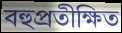
বহুপ্রতীক্ষিত